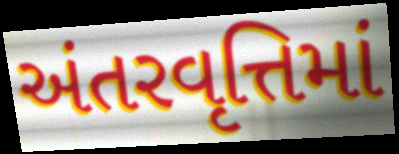
અંતરવૃત્તિમાં